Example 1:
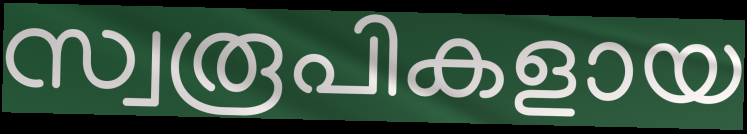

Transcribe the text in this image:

സ്വരൂപികളായ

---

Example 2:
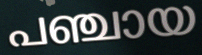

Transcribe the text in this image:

പഞ്ചായ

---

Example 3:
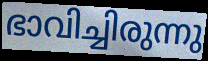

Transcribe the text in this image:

ഭാവിച്ചിരുന്നു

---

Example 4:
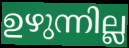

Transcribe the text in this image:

ഉഴുന്നില്ല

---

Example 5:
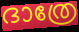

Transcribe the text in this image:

ദാത്രേ